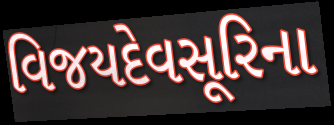
વિજયદેવસૂરિના